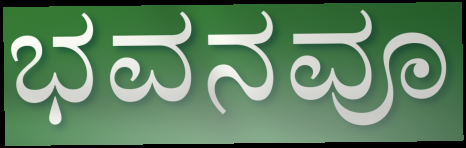
ಭವನವೂ